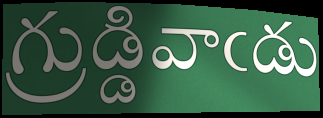
గ్రుడ్డివాఁడు